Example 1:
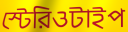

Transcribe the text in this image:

স্টেরিওটাইপ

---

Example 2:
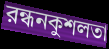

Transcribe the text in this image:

রন্ধনকুশলতা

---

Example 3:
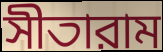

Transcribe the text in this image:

সীতারাম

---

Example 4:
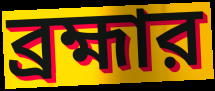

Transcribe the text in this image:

ব্রহ্মার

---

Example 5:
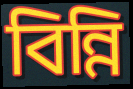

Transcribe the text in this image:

বিন্নি